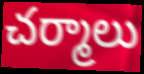
చర్మాలు